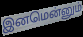
இனமென்னும்